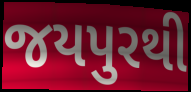
જયપુરથી